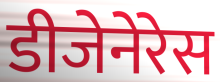
डीजेनेरेस